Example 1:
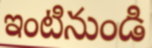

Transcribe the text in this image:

ఇంటినుండి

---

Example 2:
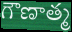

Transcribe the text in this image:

గౌణాత్మ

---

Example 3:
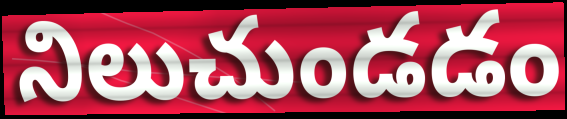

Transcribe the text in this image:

నిలుచుండడం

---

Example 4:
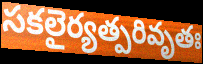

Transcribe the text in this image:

సకలైర్యత్పరివృతః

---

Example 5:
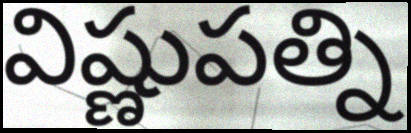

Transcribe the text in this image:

విష్ణుపత్ని